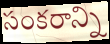
సంకరాన్ని